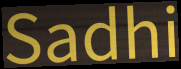
Sadhi